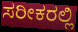
ಸರೀಕರಲ್ಲಿ